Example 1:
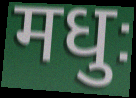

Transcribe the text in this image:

मधुः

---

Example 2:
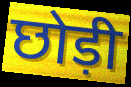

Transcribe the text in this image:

छोड़ी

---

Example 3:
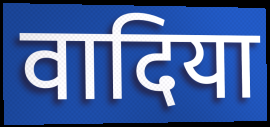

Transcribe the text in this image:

वादिया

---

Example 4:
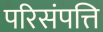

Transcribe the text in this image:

परिसंपत्ति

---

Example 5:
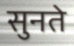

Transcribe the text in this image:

सुनते